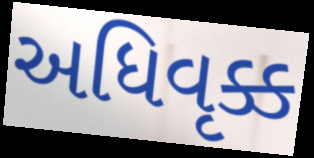
અધિવૃક્ક